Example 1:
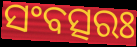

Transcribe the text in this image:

ସଂବତ୍ସରଃ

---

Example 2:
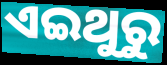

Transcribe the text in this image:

ଏଇଥୁରୁ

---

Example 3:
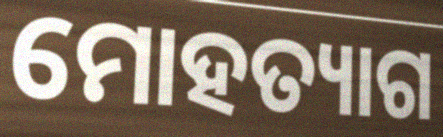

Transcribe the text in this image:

ମୋହତ୍ୟାଗ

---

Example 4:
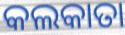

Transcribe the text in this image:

କଲକାତା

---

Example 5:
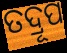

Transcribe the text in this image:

ତଦ୍ରୂପ